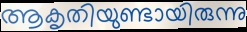
ആകൃതിയുണ്ടായിരുന്നു